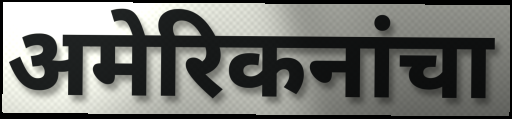
अमेरिकनांचा